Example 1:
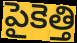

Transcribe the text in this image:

పైకెత్తి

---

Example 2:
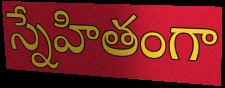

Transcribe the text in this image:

స్నేహితంగా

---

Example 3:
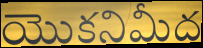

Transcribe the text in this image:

యొకనిమీద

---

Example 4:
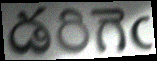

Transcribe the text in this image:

డరిగెఁ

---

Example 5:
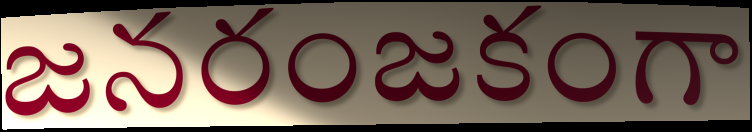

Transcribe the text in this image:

జనరంజకంగా